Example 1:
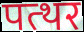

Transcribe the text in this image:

पत्‍थर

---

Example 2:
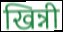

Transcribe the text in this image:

खिन्नी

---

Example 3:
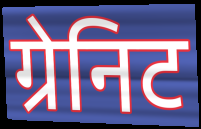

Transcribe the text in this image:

ग्रेनिट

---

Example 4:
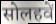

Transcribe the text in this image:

सोलहवें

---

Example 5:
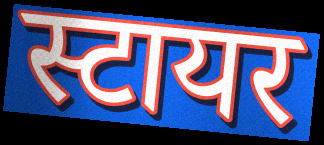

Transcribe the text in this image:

स्टायर